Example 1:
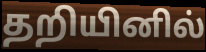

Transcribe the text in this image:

தறியினில்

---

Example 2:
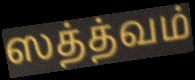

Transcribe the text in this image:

ஸத்த்வம்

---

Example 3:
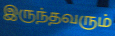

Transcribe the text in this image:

இருந்தவரும்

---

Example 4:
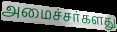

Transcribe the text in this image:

அமைச்சர்களது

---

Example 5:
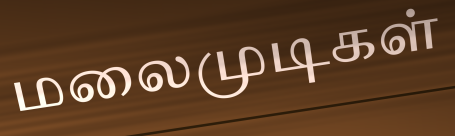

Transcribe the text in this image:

மலைமுடிகள்